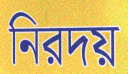
নিরদয়